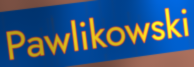
Pawlikowski